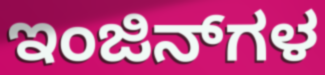
ಇಂಜಿನ್‌ಗಳ